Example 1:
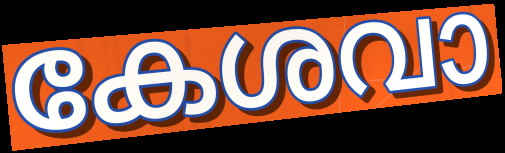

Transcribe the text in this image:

കേശവാ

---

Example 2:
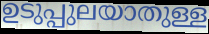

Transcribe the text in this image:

ഉടുപ്പുലയാതുള്ള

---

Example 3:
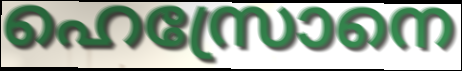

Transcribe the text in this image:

ഹെസ്രോനെ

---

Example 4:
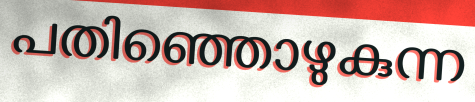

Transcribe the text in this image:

പതിഞ്ഞൊഴുകുന്ന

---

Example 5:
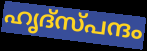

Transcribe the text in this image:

ഹൃദ്സ്പന്ദം